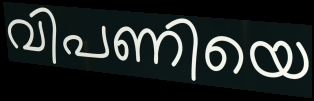
വിപണിയെ